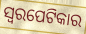
ସ୍ଵରପେଟିକାର